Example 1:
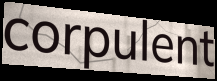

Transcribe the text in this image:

corpulent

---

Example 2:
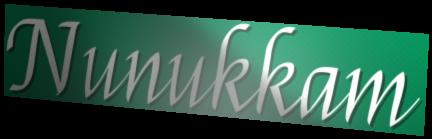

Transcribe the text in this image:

Nunukkam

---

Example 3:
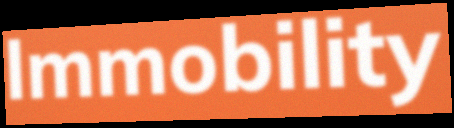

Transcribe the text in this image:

Immobility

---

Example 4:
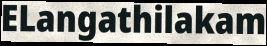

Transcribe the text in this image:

ELangathilakam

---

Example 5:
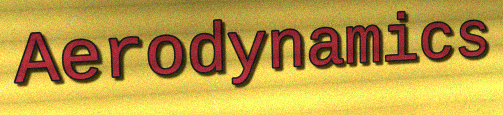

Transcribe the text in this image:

Aerodynamics